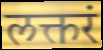
लक्तरं